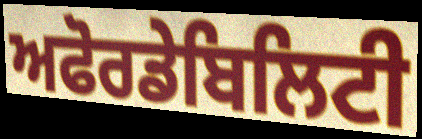
ਅਫੋਰਡੇਬਿਲਿਟੀ